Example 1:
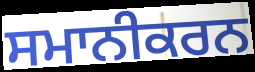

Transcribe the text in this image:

ਸਮਾਨੀਕਰਨ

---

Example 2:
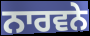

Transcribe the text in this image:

ਨਾਰਵਨੇ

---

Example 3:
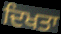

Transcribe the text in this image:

ਦਿਖਤਾ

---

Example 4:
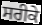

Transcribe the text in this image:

ਸਰੀਕੇ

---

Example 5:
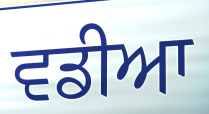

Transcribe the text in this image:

ਵਡੀਆ